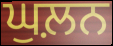
ਘੁਲ਼ਨ